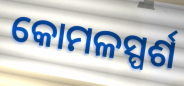
କୋମଳସ୍ପର୍ଶ